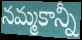
నమ్మకాన్నీ